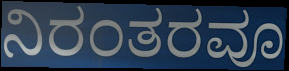
ನಿರಂತರವೂ